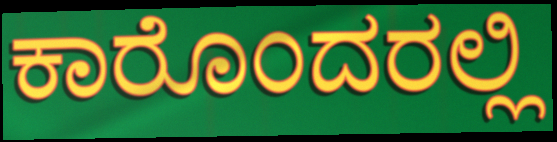
ಕಾರೊಂದರಲ್ಲಿ